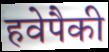
हवेपैकी